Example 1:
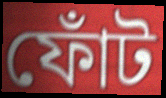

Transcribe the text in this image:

ফোঁট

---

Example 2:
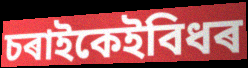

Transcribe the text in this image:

চৰাইকেইবিধৰ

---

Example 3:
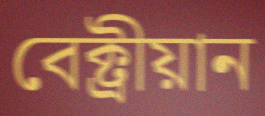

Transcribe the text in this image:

বেক্ট্ৰীয়ান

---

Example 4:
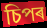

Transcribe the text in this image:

চিপৰ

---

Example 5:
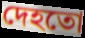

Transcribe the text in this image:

দেহতো